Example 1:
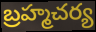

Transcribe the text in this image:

బ్రహ్మచర్య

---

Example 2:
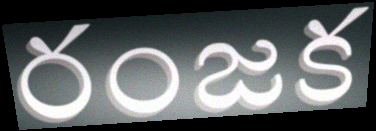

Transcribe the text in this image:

రంజక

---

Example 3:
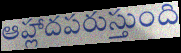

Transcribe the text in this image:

ఆహ్లాదపరుస్తుంది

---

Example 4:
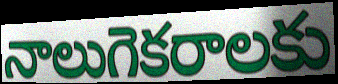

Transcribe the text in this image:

నాలుగెకరాలకు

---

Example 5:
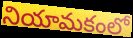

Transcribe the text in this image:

నియామకంలో